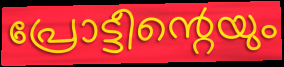
പ്രോട്ടീന്റെയും